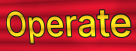
Operate